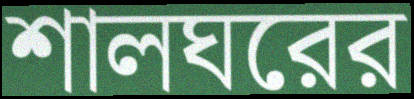
শালঘরের